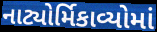
નાટ્યોર્મિકાવ્યોમાં